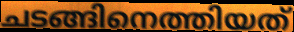
ചടങ്ങിനെത്തിയത്